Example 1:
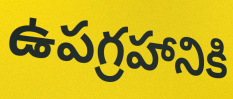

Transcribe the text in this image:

ఉపగ్రహానికి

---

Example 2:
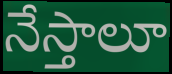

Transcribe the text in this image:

నేస్తాలూ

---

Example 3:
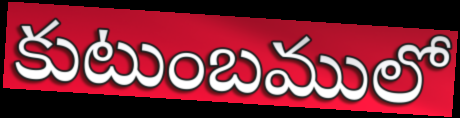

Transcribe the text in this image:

కుటుంబములో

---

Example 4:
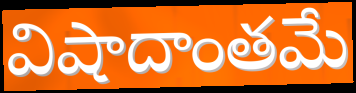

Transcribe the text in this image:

విషాదాంతమే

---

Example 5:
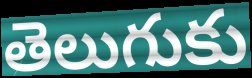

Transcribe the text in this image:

తెలుగుకు